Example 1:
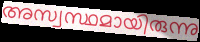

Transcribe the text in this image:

അസ്വസ്ഥമായിരുന്നു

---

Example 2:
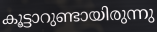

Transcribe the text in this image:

കൂട്ടാറുണ്ടായിരുന്നു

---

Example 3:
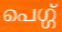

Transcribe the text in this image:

പെഗ്ഗ്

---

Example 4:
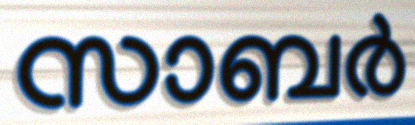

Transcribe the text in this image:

സാബർ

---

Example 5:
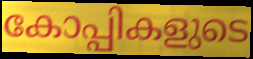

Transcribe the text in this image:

കോപ്പികളുടെ